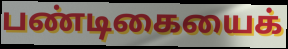
பண்டிகையைக்